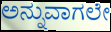
ಅನ್ನುವಾಗಲೇ